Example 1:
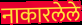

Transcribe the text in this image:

नाकारलेले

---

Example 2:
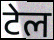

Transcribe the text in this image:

टेल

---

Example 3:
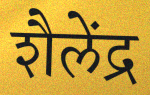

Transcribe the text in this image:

शैलेंद्र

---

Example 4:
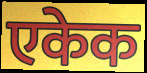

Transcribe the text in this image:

एकेक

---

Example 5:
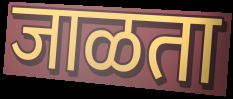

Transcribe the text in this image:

जाळता